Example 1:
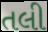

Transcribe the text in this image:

તલી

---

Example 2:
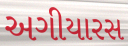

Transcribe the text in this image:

અગીયારસ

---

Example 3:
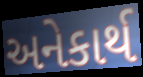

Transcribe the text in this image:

અનેકાર્થ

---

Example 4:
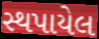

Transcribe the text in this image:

સ્થપાયેલ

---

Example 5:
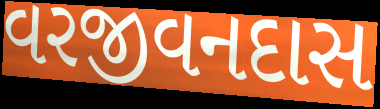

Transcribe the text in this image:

વરજીવનદાસ